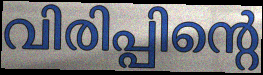
വിരിപ്പിന്റെ